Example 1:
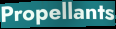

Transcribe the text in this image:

Propellants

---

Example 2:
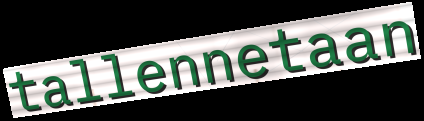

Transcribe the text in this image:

tallennetaan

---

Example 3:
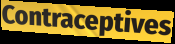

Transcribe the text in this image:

Contraceptives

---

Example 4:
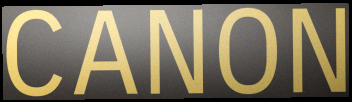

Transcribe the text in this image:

CANON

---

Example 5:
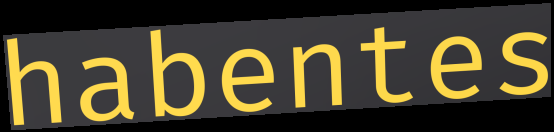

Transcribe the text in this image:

habentes